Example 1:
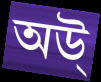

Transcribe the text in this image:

অউ্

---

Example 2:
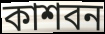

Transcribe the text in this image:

কাশবন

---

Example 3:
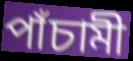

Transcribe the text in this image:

পাঁচামী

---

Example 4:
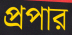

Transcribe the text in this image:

প্রপার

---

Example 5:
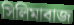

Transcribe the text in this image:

সিলিমাবাজ